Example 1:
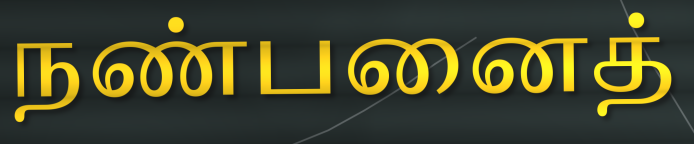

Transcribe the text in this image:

நண்பனைத்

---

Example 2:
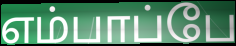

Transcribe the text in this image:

எம்பாப்பே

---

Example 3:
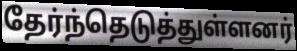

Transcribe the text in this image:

தேர்ந்தெடுத்துள்ளனர்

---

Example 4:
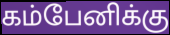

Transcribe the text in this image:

கம்பேனிக்கு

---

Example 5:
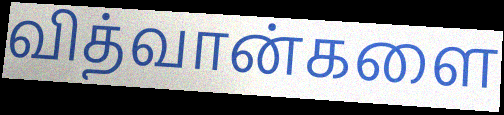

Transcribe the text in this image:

வித்வான்களை